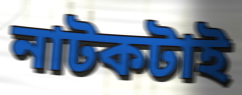
নাটকটাই